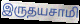
இருதயசாமி